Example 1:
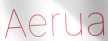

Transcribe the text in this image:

Aerua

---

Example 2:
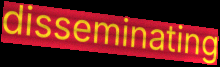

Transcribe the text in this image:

disseminating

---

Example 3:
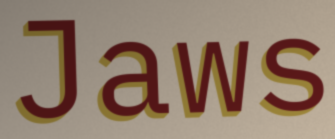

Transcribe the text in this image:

Jaws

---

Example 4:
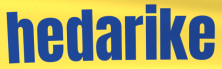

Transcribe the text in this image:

hedarike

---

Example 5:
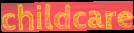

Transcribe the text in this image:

childcare